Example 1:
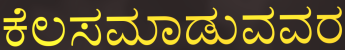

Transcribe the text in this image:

ಕೆಲಸಮಾಡುವವರ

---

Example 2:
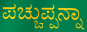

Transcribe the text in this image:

ಪಚ್ಚುಪ್ಪನ್ನಾ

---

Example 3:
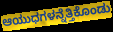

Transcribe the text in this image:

ಆಯುಧಗಳನ್ನೆತ್ತಿಕೊಂಡು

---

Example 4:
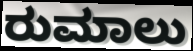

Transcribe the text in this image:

ರುಮಾಲು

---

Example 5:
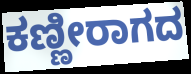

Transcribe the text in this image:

ಕಣ್ಣೀರಾಗದ